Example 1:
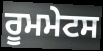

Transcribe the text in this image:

ਰੂਮਮੇਟਸ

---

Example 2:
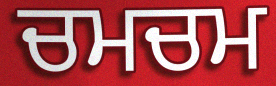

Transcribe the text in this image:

ਚਮਚਮ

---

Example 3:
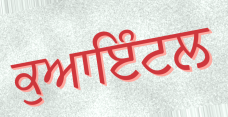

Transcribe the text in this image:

ਕੁਆਇੰਟਲ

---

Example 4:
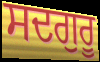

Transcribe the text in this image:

ਸਦਗੁਰੂ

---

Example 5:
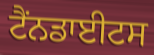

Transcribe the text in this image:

ਟੈਂਨਡਾਈਟਸ